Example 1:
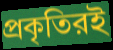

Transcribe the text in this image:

প্রকৃতিরই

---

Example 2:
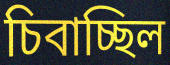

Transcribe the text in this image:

চিবাচ্ছিল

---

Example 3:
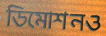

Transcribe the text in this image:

ডিমোশনও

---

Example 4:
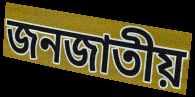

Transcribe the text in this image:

জনজাতীয়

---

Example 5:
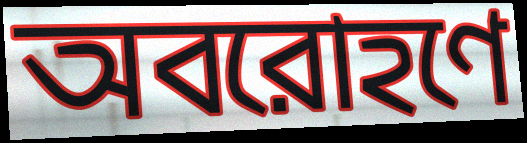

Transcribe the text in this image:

অবরোহণে